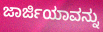
ಜಾರ್ಜಿಯಾವನ್ನು